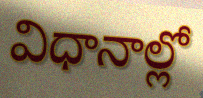
విధానాల్లో